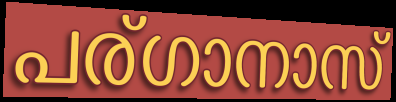
പര്ഗാനാസ്